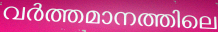
വർത്തമാനത്തിലെ